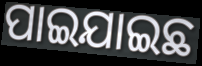
ପାଇଯାଇଛ